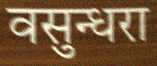
वसुन्धरा